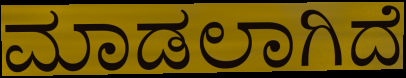
ಮಾಡಲಾಗಿದೆ